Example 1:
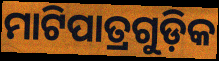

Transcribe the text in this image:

ମାଟିପାତ୍ରଗୁଡ଼ିକ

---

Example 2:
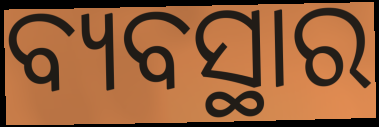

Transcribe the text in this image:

ବ୍ୟବସ୍ଥାର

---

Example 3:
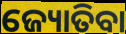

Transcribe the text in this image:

ଜ୍ୟୋତିବା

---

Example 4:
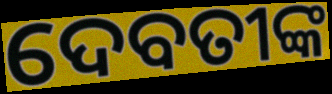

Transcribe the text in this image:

ଦେବତୀଙ୍କ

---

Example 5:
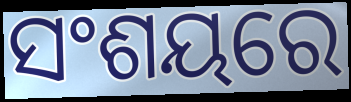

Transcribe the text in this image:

ସଂଶୟରେ